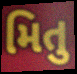
મિતુ